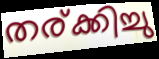
തര്ക്കിച്ചു